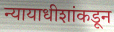
न्यायाधीशांकडून